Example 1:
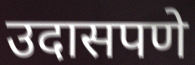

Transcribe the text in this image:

उदासपणे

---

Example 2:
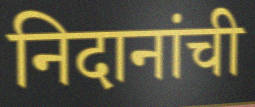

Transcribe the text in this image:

निदानांची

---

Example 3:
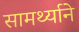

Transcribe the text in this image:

सामर्थ्याने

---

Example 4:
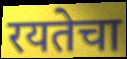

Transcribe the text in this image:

रयतेचा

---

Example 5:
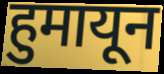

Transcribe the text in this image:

हुमायून